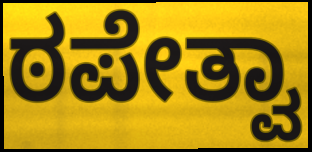
ಠಪೇತ್ವಾ